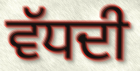
ਵੱਧਦੀ